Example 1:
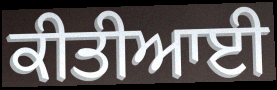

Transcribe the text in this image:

ਕੀਤੀਆਈ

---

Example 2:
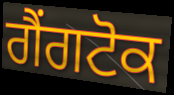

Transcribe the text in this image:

ਗੈਂਗਟੋਕ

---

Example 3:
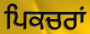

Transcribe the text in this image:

ਪਿਕਚਰਾਂ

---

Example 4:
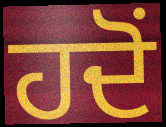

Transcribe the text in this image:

ਹਦੋਂ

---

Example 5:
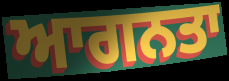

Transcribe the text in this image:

ਆਗਨਤਾ